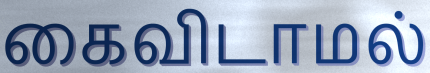
கைவிடாமல்